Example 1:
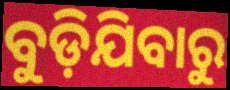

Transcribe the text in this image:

ବୁଡ଼ିଯିବାରୁ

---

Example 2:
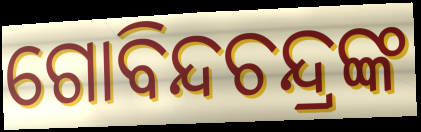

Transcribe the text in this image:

ଗୋବିନ୍ଦଚନ୍ଦ୍ରଙ୍କ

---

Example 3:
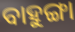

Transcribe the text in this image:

ବାହୁଙ୍ଗା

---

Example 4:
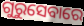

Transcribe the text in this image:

ଗୁରୁସେବାରେ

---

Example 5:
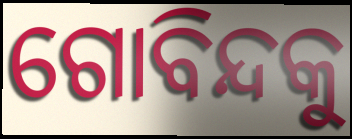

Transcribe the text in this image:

ଗୋବିନ୍ଦକୁ